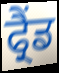
ਫ੍ਰੈਂਡ